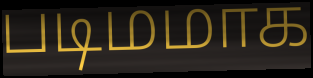
படிமமாக